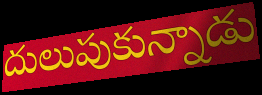
దులుపుకున్నాడు